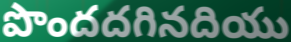
పొందదగినదియు